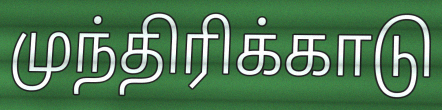
முந்திரிக்காடு